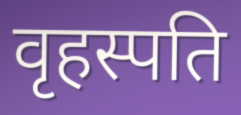
वृहस्पति